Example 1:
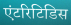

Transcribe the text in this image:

एंटरिटिडिस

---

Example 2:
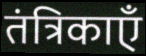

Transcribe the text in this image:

तंत्रिकाएँ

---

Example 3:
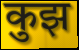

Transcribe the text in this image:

कुझ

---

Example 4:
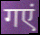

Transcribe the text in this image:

गएं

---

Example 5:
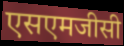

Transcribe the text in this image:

एसएमजीसी